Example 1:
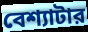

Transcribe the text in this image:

বেশ্যাটার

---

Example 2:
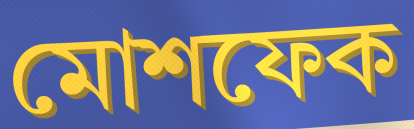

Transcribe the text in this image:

মোশফেক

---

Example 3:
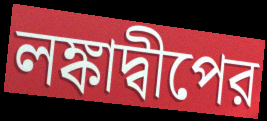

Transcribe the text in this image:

লঙ্কাদ্বীপের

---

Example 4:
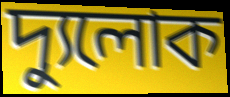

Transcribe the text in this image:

দ্যুলোক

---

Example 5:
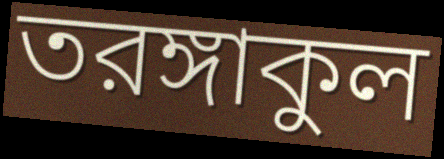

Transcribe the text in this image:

তরঙ্গাকুল